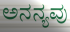
ಅನನ್ಯವು